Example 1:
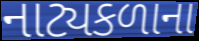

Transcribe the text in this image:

નાટ્યકળાના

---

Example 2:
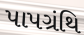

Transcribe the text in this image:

પાપગ્રંથિ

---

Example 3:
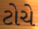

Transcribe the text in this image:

ટોચે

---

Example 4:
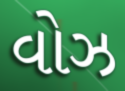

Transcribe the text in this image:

વોઝ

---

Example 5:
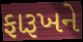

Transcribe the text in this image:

ફારૂખને